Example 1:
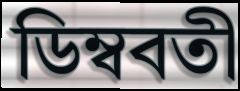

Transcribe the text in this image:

ডিম্ববতী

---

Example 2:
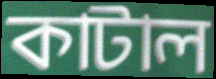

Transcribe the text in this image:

কাটাল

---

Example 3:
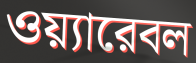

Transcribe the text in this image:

ওয়্যারেবল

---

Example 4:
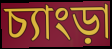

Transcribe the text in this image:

চ্যাংড়া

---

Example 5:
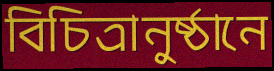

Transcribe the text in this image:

বিচিত্রানুষ্ঠানে